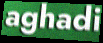
aghadi